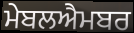
ਮੇਬਲਐਮਬਰ